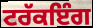
ਟਰੱਕਇੰਗ